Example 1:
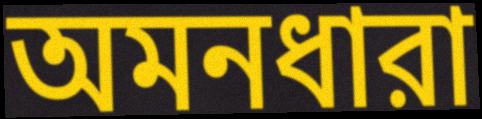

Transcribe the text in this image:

অমনধারা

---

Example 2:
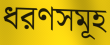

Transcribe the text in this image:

ধরণসমূহ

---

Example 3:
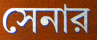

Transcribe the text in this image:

সেনার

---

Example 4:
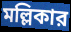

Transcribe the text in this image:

মল্লিকার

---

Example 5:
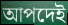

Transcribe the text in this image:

আপদেই